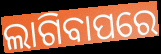
ଲାଗିବାପରେ